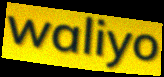
waliyo